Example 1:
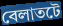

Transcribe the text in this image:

বেলাতটে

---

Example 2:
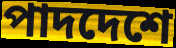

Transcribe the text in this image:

পাদদেশে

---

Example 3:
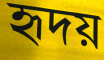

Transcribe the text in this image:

হৃদয়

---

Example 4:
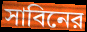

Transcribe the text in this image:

সাবিনের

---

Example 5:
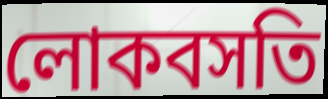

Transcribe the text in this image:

লোকবসতি